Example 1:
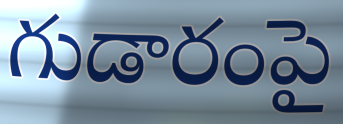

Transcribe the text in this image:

గుడారంపై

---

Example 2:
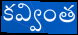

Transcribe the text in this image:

కవ్వింత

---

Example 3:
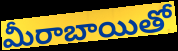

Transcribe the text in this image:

మీరాబాయితో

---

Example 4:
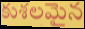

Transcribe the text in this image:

కుశలమైన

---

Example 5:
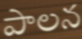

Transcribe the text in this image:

పాలన